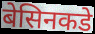
बेसिनकडे